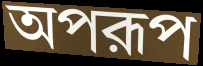
অপরূপ